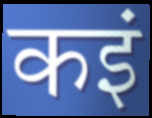
कइं